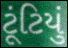
ટૂંટિયું